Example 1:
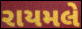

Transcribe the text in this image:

રાયમલે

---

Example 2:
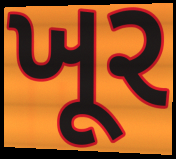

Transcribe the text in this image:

ખૂર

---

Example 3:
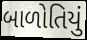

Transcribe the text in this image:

બાળોતિયું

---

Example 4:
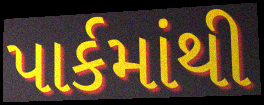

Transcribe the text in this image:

પાર્કમાંથી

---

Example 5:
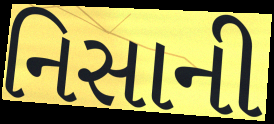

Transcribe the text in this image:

નિસાની